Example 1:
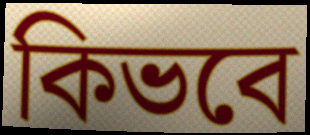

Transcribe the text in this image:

কিভবে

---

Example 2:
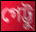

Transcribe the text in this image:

গেট্টু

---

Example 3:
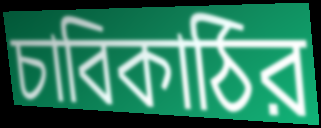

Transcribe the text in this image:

চাবিকাঠির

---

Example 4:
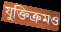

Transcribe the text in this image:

যুক্তিক্রমও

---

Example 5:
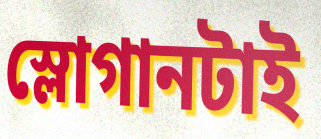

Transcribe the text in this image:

স্লোগানটাই